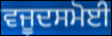
ਵਜੂਦਸਮੋਈ